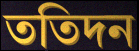
ততিদন